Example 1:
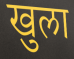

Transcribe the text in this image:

खुला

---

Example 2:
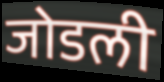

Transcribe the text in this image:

जोडली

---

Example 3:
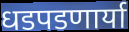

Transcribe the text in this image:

धडपडणार्या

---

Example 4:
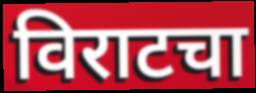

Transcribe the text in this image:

विराटचा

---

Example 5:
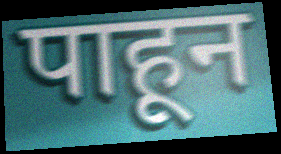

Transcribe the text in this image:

पाहून